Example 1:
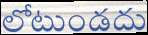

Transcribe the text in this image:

లోటుండదు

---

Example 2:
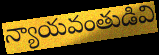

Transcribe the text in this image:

న్యాయవంతుడివి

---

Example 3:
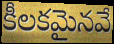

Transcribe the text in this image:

కీలకమైనవే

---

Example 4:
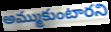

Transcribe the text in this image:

అమ్ముకుంటారని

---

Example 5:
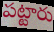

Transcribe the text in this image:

పట్టారు